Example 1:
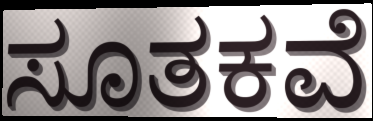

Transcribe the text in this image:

ಸೂತಕವೆ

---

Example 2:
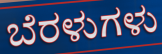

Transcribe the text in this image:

ಬೆರಳುಗಳು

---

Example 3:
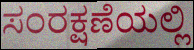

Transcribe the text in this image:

ಸಂರಕ್ಷಣೆಯಲ್ಲಿ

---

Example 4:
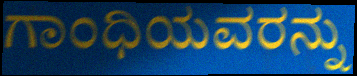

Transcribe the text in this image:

ಗಾಂಧಿಯವರನ್ನು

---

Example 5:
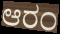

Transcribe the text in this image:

ಆರಂ